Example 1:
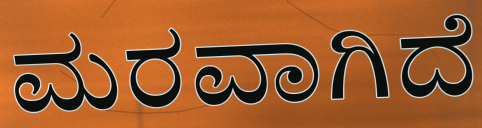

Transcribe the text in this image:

ಮರವಾಗಿದೆ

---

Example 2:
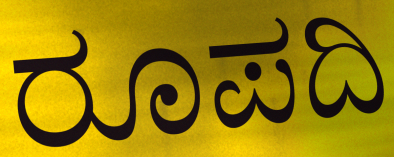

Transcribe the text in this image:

ರೂಪದಿ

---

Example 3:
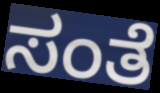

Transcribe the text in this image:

ಸಂತೆ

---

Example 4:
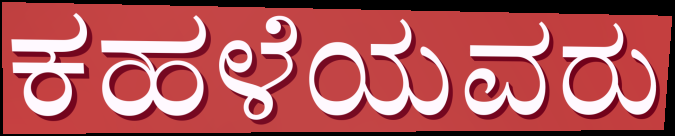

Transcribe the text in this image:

ಕಹಳೆಯವರು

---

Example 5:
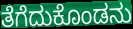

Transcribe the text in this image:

ತೆಗೆದುಕೊಂಡನು